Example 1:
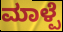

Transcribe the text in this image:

ಮಾಳ್ಪೆ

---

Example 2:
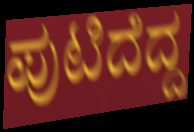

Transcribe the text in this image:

ಪುಟಿದೆದ್ದ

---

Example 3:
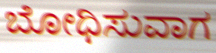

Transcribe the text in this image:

ಬೋಧಿಸುವಾಗ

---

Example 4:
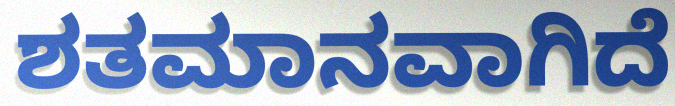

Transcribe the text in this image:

ಶತಮಾನವಾಗಿದೆ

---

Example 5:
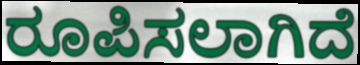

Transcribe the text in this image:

ರೂಪಿಸಲಾಗಿದೆ